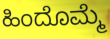
ಹಿಂದೊಮ್ಮೆ